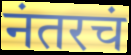
नंतरचं